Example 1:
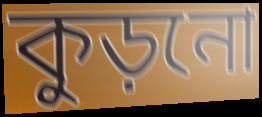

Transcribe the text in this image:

কুড়নো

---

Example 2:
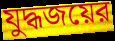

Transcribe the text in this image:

যুদ্ধজয়ের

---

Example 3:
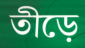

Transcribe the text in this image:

তীড়ে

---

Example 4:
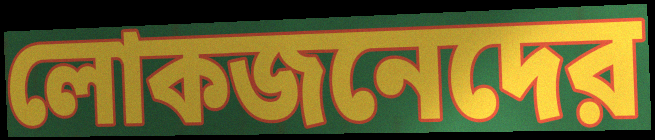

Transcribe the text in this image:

লোকজনেদের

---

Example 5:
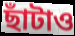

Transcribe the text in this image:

ছাঁটাও